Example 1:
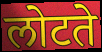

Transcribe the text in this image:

लोटते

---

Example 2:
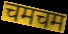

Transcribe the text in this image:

चमचम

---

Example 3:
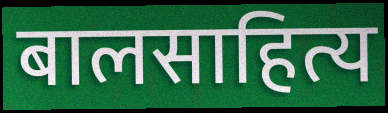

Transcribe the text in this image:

बालसाहित्य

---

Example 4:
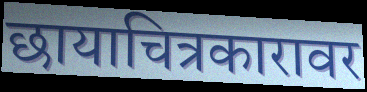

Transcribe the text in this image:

छायाचित्रकारावर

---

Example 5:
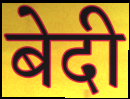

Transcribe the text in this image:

बेदी